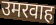
उमरवाह